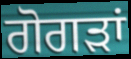
ਗੋਗੜਾਂ